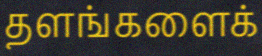
தளங்களைக்